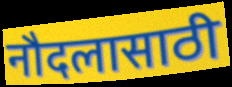
नौदलासाठी